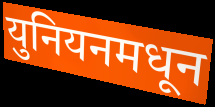
युनियनमधून